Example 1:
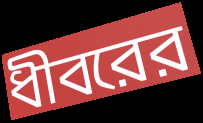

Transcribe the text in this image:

ধীবরের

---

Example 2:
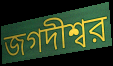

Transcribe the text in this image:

জগদীশ্বর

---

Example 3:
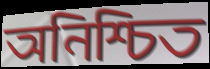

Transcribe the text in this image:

অনিশ্চিত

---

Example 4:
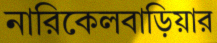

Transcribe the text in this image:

নারিকেলবাড়িয়ার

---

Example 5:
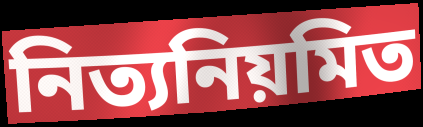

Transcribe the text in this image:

নিত্যনিয়মিত